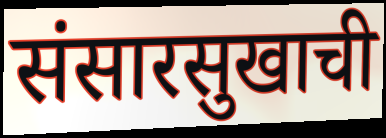
संसारसुखाची